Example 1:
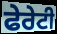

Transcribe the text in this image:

ਫੇਰੇਟੀ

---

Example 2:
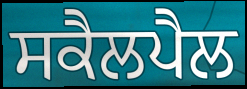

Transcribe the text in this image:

ਸਕੈਲਪੈਲ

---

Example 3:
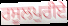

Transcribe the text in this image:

ਰਸੂਲਪੁਰੀਏ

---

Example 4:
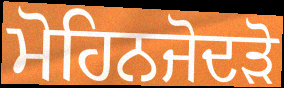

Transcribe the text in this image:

ਮੋਹਿਨਜੋਦੜੋ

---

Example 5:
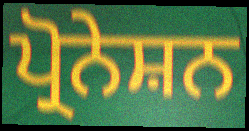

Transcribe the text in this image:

ਪ੍ਰੋਨੇਸ਼ਨ